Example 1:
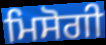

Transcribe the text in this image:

ਮਿਸੋਗੀ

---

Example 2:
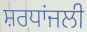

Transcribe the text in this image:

ਸ਼ਰਧਾਂਜਲੀ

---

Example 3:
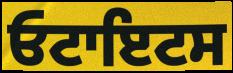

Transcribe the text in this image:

ਓਟਾਇਟਸ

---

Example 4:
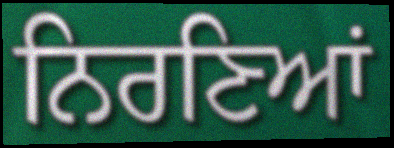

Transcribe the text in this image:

ਨਿਰਣਿਆਂ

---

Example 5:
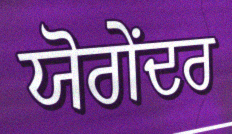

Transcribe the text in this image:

ਯੋਗੇਂਦਰ